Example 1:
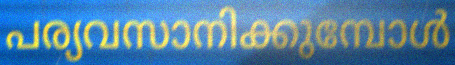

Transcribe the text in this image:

പര്യവസാനിക്കുമ്പോൾ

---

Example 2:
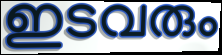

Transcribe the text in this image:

ഇടവരും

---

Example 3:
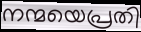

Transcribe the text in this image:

നന്മയെപ്രതി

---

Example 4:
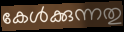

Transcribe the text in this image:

കേൾക്കുന്നതു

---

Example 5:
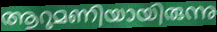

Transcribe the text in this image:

ആറുമണിയായിരുന്നു